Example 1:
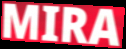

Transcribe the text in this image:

MIRA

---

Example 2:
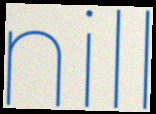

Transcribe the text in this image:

nill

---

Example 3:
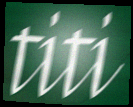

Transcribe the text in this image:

titi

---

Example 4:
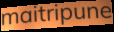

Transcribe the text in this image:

maitripune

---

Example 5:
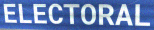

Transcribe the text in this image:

ELECTORAL